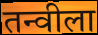
तन्वीला